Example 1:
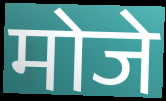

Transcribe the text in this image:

मोजे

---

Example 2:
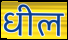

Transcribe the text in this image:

धील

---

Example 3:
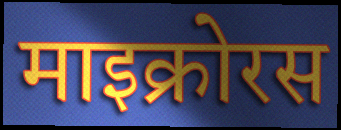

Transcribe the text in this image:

माइक्रोरस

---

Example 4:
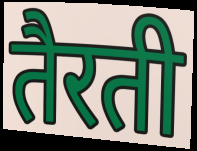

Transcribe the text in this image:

तैरती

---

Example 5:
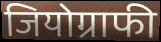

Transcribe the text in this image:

जियोग्राफी